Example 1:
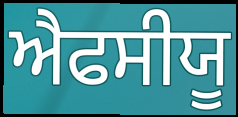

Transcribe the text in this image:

ਐਫਸੀਯੂ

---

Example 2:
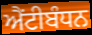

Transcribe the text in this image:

ਐਂਟੀਬੰਧਨ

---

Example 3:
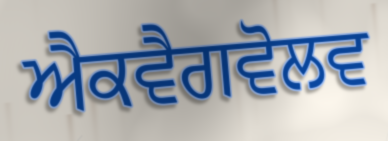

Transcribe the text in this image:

ਐਕਵੈਗਵੋਲਵ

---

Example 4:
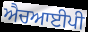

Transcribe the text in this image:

ਐਚਆਈਪੀ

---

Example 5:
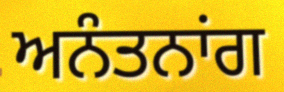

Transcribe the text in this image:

ਅਨੰਤਨਾਂਗ